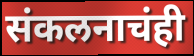
संकलनाचंही